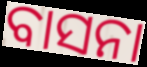
ବାସନା